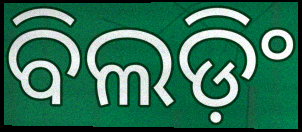
ବିଲଡ଼ିଂ